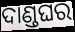
ଦାଣ୍ଡଘର